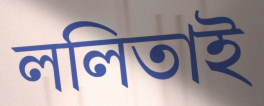
ললিতাই